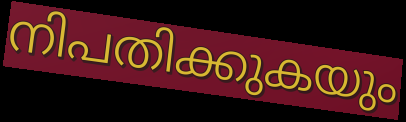
നിപതിക്കുകയും